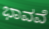
ಭಾವವೆ